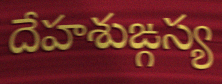
దేహశుఙ్గస్య